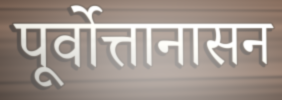
पूर्वोत्तानासन